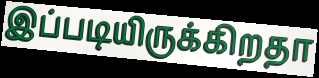
இப்படியிருக்கிறதா